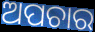
ଅପଚାର